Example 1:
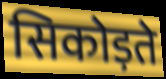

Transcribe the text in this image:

सिकोड़ते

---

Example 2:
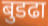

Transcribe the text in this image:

बुडढा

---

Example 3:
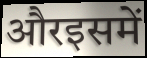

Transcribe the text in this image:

औरइसमें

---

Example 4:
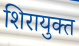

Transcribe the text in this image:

शिरायुक्त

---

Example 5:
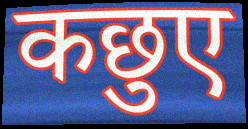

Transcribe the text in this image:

कछुए